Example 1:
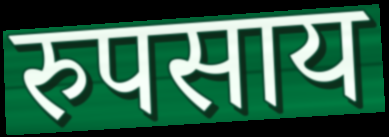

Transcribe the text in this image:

रुपसाय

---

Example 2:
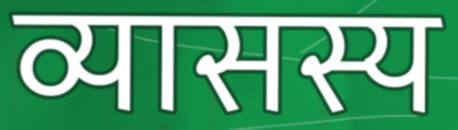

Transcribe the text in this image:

व्यासस्य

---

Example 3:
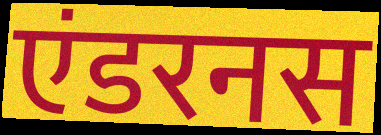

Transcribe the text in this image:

एंडरनस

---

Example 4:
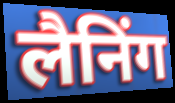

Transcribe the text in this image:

लैनिंग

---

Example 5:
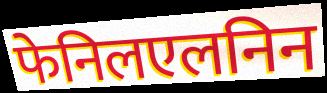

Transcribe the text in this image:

फेनिलएलनिन